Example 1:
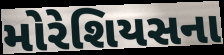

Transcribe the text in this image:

મોરેશિયસના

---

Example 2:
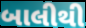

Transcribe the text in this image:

બાલીથી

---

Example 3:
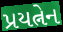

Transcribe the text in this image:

પ્રયત્નેન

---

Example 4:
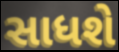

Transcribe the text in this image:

સાધશે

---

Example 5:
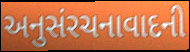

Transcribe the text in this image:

અનુસંરચનાવાદની